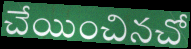
చేయించినచో